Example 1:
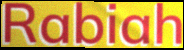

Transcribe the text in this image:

Rabiah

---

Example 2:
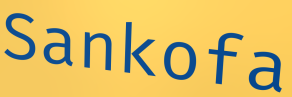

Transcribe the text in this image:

Sankofa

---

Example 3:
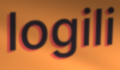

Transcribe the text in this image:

logili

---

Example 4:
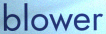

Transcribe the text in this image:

blower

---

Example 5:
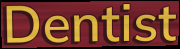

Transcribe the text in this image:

Dentist